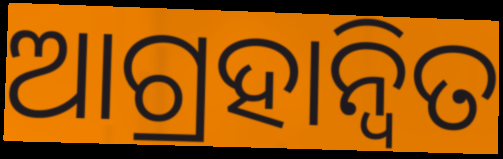
ଆଗ୍ରହାନ୍ୱିତ